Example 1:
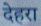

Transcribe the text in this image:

देहरा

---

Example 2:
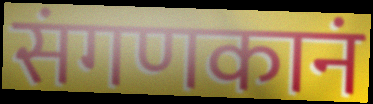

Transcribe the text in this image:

संगणकानं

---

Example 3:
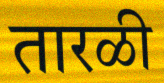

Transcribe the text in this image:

तारळी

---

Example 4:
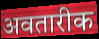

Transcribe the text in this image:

अवतारीक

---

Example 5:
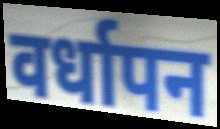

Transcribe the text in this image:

वर्धापन